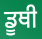
ਡੂਥੀ